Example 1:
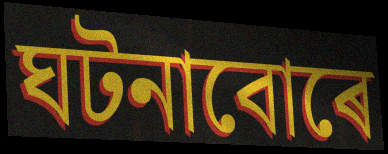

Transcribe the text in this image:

ঘটনাবোৰে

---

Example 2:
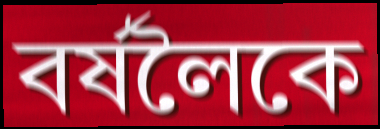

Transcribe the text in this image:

বৰ্ষলৈকে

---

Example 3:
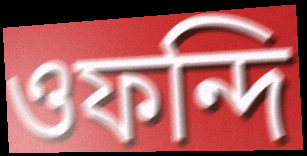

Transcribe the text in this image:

ওফন্দি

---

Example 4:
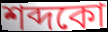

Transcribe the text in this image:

শব্দকো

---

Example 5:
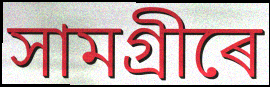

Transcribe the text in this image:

সামগ্ৰীৰে